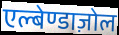
एल्बेण्डाज़ोल